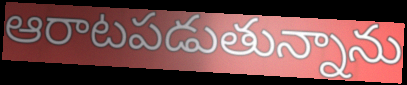
ఆరాటపడుతున్నాను